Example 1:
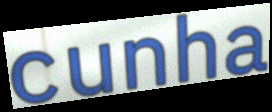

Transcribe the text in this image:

cunha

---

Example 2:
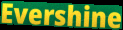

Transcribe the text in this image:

Evershine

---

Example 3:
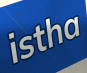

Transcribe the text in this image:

istha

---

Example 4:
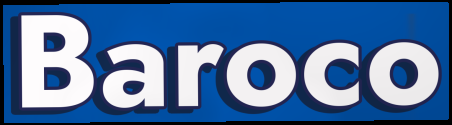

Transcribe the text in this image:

Baroco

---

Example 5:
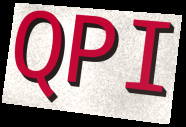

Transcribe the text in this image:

QPI